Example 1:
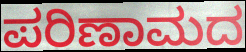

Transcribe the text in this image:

ಪರಿಣಾಮದ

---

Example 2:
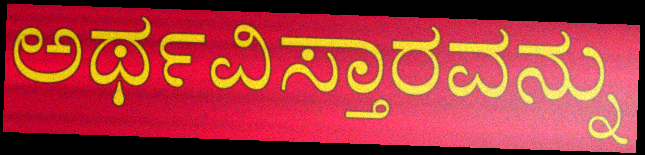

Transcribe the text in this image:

ಅರ್ಥವಿಸ್ತಾರವನ್ನು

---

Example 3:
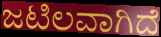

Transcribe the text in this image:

ಜಟಿಲವಾಗಿದೆ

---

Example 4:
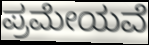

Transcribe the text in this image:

ಪ್ರಮೇಯವೆ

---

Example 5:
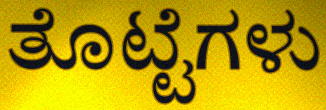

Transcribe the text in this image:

ತೊಟ್ಟೆಗಳು